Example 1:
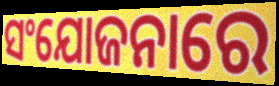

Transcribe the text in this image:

ସଂଯୋଜନାରେ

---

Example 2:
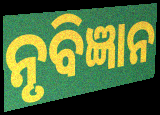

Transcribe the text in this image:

ନୃବିଜ୍ଞାନ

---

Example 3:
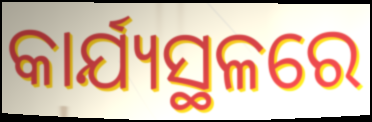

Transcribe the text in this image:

କାର୍ଯ୍ୟସ୍ଥଳରେ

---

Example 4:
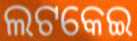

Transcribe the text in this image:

ଲଟକେଇ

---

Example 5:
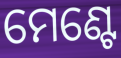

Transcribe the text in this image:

ମେଣ୍ଟେ